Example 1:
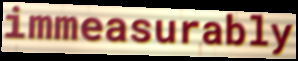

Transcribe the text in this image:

immeasurably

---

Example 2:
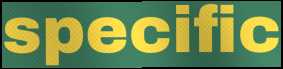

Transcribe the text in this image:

specific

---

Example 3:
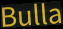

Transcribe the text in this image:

Bulla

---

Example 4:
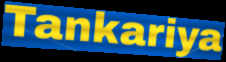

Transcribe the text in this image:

Tankariya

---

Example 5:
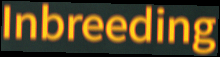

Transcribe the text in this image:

Inbreeding